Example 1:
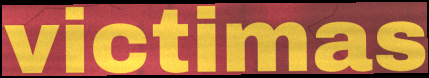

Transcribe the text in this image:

victimas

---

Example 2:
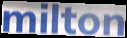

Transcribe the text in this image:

milton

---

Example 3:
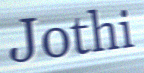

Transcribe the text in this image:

Jothi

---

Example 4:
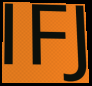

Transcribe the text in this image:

IFJ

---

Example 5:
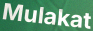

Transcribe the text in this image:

Mulakat